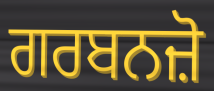
ਗਰਬਨਜ਼ੋ